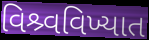
વિશ્ર્વવિખ્યાત